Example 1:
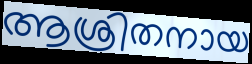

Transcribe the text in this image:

ആശ്രിതനായ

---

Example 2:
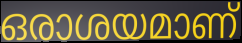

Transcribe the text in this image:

ഒരാശയമാണ്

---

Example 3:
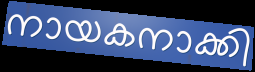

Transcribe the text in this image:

നായകനാക്കി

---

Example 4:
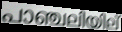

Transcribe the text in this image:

പാഞ്ചലിയില്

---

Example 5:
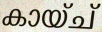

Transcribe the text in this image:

കായ്ച്